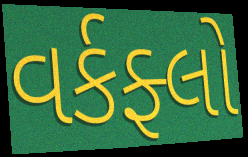
વર્કફ્લો